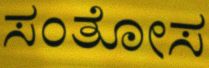
ಸಂತೋಸ